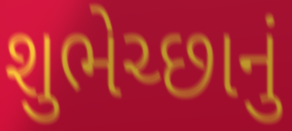
શુભેચ્છાનું